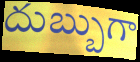
దుబ్బుగా